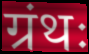
ग्रंथः